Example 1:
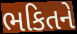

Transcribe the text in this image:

ભકિતને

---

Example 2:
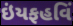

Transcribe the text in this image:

ઇંયફહવિં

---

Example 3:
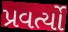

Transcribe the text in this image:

પ્રવર્ત્યો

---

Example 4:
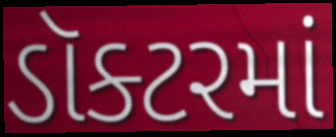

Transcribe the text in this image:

ડૉક્ટરમાં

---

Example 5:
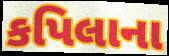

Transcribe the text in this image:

કપિલાના